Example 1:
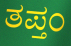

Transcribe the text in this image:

ತಪ್ತಂ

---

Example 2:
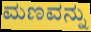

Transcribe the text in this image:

ಮಣವನ್ನು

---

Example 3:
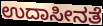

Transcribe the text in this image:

ಉದಾಸೀನತೆ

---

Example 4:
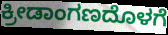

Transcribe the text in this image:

ಕ್ರೀಡಾಂಗಣದೊಳಗೆ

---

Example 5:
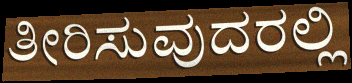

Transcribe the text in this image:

ತೀರಿಸುವುದರಲ್ಲಿ